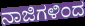
ನಾಜಿಗಳಿಂದ